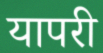
यापरी